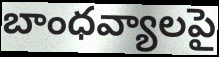
బాంధవ్యాలపై